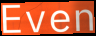
Even